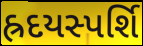
હ્રદયસ્પર્શિ